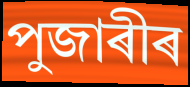
পুজাৰীৰ